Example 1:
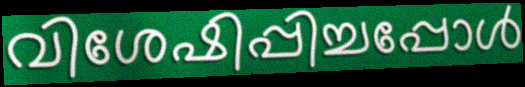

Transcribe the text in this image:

വിശേഷിപ്പിച്ചപ്പോൾ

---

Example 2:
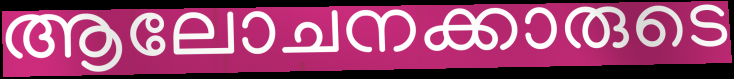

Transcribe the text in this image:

ആലോചനക്കാരുടെ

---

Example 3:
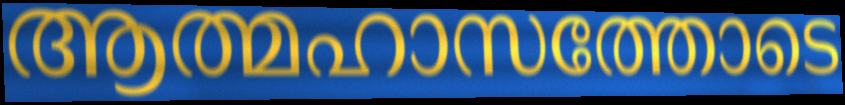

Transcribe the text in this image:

ആത്മഹാസത്തോടെ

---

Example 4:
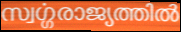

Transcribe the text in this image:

സ്വൎഗ്ഗരാജ്യത്തിൽ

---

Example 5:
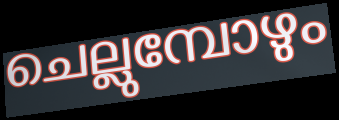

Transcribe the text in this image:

ചെല്ലുമ്പോഴും